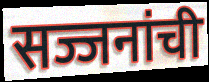
सज्जनांची